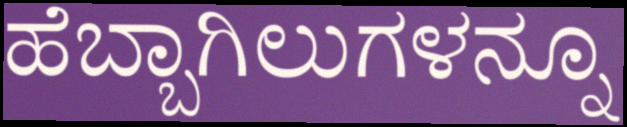
ಹೆಬ್ಬಾಗಿಲುಗಳನ್ನೂ